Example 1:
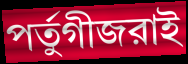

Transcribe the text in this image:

পর্তুগীজরাই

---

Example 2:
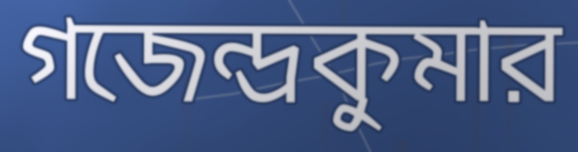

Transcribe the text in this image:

গজেন্দ্রকুমার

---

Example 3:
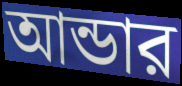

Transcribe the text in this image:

আন্ডার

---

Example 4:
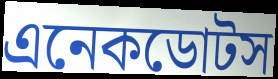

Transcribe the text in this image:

এনেকডোটস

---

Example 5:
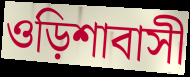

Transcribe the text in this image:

ওড়িশাবাসী